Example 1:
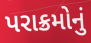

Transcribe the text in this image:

પરાક્રમોનું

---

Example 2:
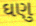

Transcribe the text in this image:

ઘણુ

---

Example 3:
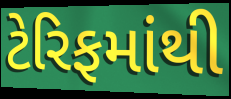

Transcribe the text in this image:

ટેરિફમાંથી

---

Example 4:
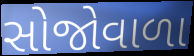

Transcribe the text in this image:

સોજોવાળા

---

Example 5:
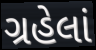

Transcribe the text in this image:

ગ્રહેલાં